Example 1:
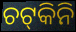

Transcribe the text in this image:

ଚଟ୍‍କିନି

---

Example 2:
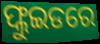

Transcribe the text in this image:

ଫ୍ଲୁଇଡରେ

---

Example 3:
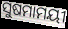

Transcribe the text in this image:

ସୁଷମାମୟୀ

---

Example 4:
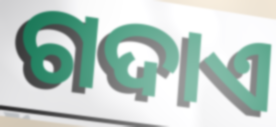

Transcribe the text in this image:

ଗଦାଏ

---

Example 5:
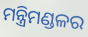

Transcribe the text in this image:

ମନ୍ତ୍ରିମଣ୍ଡଳର